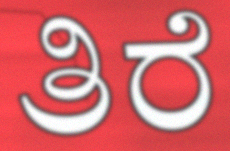
ತಿರೆ